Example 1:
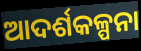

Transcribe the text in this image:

ଆଦର୍ଶକଳ୍ପନା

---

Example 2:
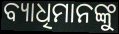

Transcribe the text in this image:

ବ୍ୟାଧିମାନଙ୍କୁ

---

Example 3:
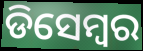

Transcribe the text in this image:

ଡିସେମ୍ୱର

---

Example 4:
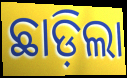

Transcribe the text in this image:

ଛାଡ଼ିଲା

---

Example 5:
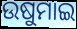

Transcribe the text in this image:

ଉଷୁମାଇ